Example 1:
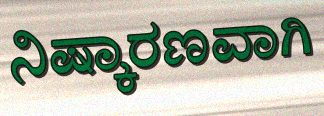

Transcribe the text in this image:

ನಿಷ್ಕಾರಣವಾಗಿ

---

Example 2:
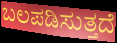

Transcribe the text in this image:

ಬಲಪಡಿಸುತ್ತದೆ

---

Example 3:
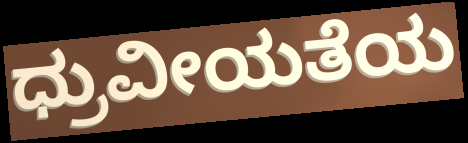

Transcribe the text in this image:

ಧ್ರುವೀಯತೆಯ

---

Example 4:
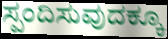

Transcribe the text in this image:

ಸ್ಪಂದಿಸುವುದಕ್ಕೂ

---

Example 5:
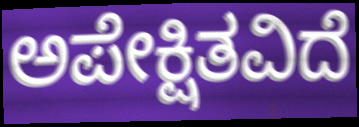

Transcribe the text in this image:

ಅಪೇಕ್ಷಿತವಿದೆ